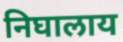
निघालाय